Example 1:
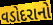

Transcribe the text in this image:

વડોદરાનો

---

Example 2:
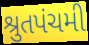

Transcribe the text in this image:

શ્રુતપંચમી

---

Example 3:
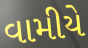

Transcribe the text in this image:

વામીયે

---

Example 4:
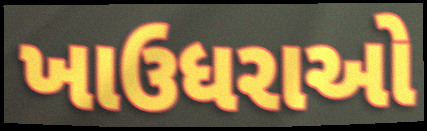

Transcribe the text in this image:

ખાઉધરાઓ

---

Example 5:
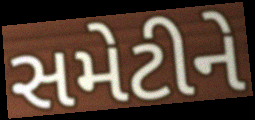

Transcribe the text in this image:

સમેટીને